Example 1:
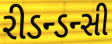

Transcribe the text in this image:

રીડન્ડન્સી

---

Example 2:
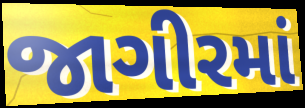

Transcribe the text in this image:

જાગીરમાં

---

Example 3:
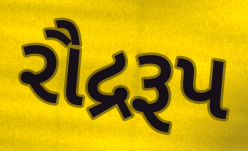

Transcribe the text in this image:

રૌદ્રરૂપ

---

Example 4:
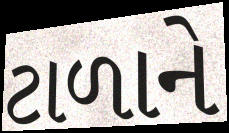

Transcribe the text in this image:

ટાળાને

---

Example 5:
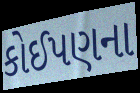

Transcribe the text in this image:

કોઈપણના